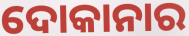
ଦୋକାନାର